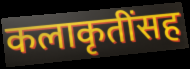
कलाकृतींसह